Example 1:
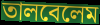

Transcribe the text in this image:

তালবেলেম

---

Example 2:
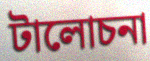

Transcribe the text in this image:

টালোচনা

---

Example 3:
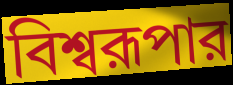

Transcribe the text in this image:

বিশ্বরূপার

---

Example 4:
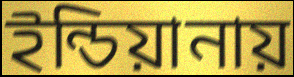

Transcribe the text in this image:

ইন্ডিয়ানায়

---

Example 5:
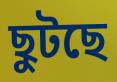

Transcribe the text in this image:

ছুটছে